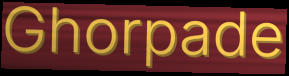
Ghorpade